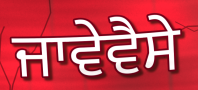
ਜਾਵੇਵੈਸੇ